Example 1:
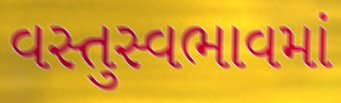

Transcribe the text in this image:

વસ્તુસ્વભાવમાં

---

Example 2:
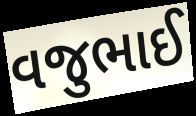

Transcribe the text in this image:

વજુભાઈ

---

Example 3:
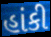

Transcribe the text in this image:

હાંકી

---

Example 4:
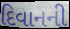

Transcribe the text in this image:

દિવાનની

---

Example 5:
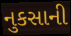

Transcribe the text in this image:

નુકસાની